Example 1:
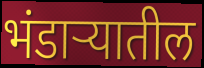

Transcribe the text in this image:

भंडाऱ्यातील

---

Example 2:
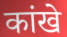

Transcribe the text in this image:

कांखे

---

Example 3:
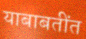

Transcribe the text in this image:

याबाबतींत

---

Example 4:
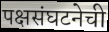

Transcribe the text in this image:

पक्षसंघटनेची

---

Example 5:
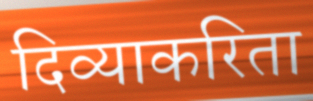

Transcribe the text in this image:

दिव्याकरिता